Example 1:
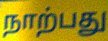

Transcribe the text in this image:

நாற்பது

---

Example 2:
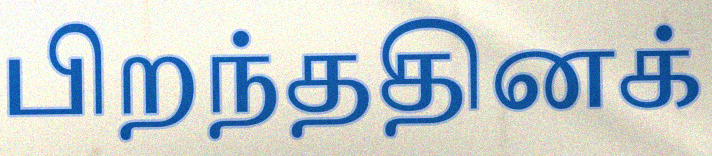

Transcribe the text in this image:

பிறந்ததினக்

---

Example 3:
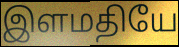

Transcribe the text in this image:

இளமதியே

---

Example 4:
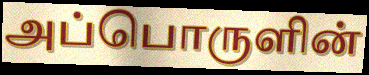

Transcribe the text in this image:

அப்பொருளின்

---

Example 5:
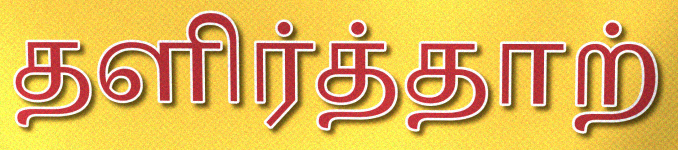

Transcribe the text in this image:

தளிர்த்தாற்